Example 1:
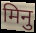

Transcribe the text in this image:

मिनु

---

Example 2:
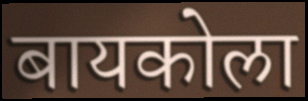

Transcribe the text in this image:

बायकोला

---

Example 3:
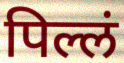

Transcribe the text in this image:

पिल्लं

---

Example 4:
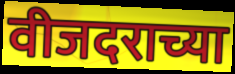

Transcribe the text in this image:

वीजदराच्या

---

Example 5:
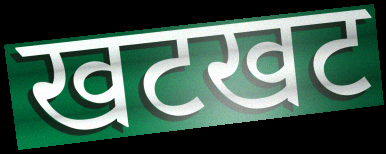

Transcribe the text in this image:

खटखट